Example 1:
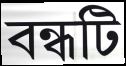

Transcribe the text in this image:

বন্ধটি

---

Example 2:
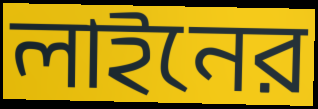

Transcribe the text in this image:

লাইনের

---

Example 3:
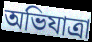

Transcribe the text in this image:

অভিযাত্রা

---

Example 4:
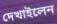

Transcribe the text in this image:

দেখাইলেন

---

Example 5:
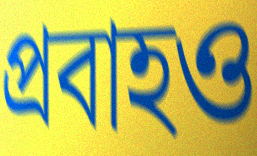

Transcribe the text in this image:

প্রবাহও